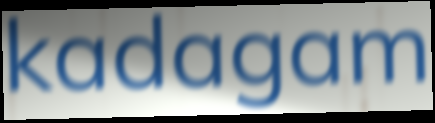
kadagam